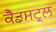
ਕੈਡਸਟ੍ਰਲ